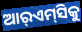
ଆର୍‌ଏମ୍‌ସିକୁ